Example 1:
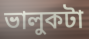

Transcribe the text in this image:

ভালুকটা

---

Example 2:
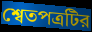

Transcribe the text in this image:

শ্বেতপত্রটির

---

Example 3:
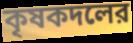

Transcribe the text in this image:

কৃষকদলের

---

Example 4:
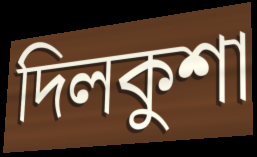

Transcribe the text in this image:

দিলকুশা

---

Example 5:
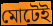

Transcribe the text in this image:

মোটেই